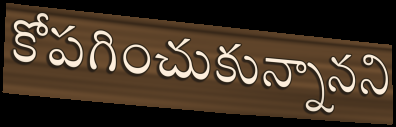
కోపగించుకున్నానని